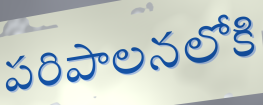
పరిపాలనలోకి